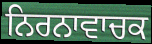
ਨਿਰਨਾਵਾਚਕ